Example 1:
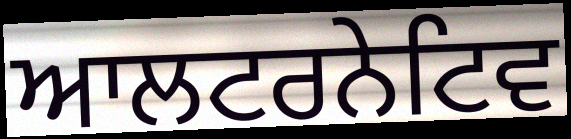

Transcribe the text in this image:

ਆਲਟਰਨੇਟਿਵ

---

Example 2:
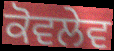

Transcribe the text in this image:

ਕੋਵਲੇਵ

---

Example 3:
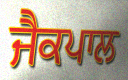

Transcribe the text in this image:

ਜੈਕਪਾਲ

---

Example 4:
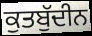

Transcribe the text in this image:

ਕੁਤਬੁੱਦੀਨ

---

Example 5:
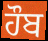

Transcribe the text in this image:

ਹੌਬ